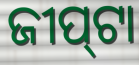
ଜୀପ୍‍ଟା